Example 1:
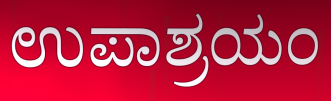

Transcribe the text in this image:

ಉಪಾಶ್ರಯಂ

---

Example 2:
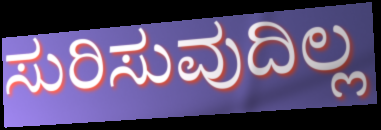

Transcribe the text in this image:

ಸುರಿಸುವುದಿಲ್ಲ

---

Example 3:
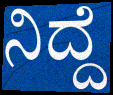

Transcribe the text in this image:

ನಿದ್ದೆ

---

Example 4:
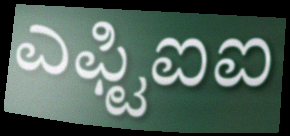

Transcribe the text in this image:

ಎಫ್ಟಿಐಐ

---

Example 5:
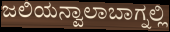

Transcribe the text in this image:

ಜಲಿಯನ್ವಾಲಾಬಾಗ್ನಲ್ಲಿ